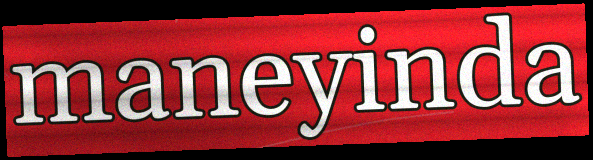
maneyinda